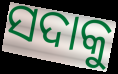
ସଦାକୁ